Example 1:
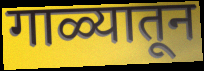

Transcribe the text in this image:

गाळ्यातून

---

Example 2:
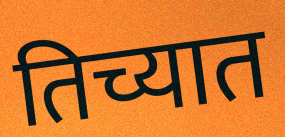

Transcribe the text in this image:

तिच्यात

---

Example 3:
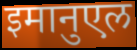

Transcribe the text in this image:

इमानुएल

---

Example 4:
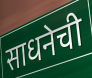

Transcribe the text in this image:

साधनेची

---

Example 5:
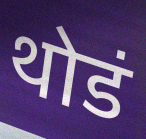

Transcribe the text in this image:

थोडं